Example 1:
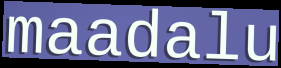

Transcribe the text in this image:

maadalu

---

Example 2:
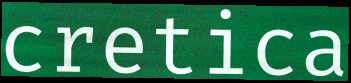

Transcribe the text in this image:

cretica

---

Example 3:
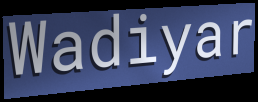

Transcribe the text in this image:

Wadiyar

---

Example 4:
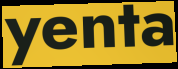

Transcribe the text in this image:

yenta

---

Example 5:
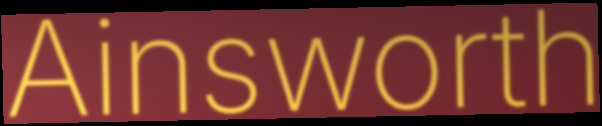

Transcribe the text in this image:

Ainsworth